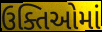
ઉક્તિઓમાં